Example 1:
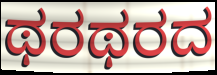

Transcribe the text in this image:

ಥರಥರದ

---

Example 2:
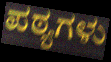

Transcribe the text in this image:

ಪಠ್ಯಗಳು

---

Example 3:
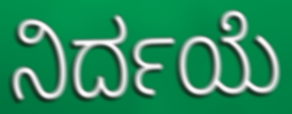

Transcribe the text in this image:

ನಿರ್ದಯೆ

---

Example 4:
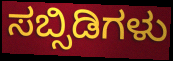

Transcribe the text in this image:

ಸಬ್ಸಿಡಿಗಳು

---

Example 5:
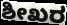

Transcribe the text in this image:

ಶೀಖರ